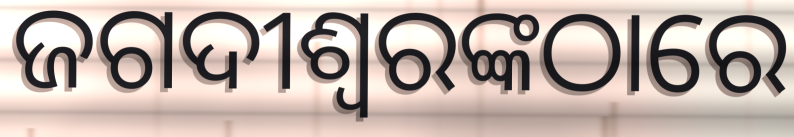
ଜଗଦୀଶ୍ୱରଙ୍କଠାରେ